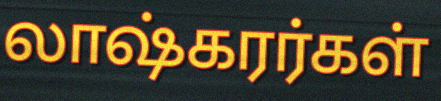
லாஷ்கரர்கள்